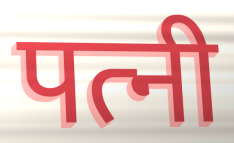
पत्‍नी